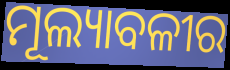
ମୂଲ୍ୟାବଳୀର